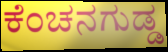
ಕೆಂಚನಗುಡ್ಡ